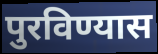
पुरविण्यास